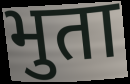
भुता